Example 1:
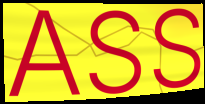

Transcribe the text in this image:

ASS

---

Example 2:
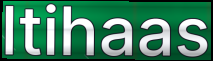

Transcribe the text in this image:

Itihaas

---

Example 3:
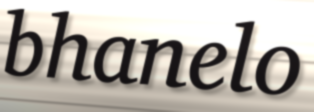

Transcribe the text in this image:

bhanelo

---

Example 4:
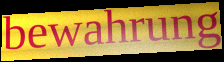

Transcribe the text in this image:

bewahrung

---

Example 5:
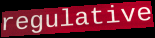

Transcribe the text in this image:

regulative